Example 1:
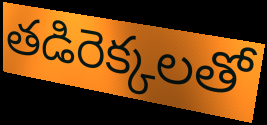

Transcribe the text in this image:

తడిరెక్కలతో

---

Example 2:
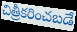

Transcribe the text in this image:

చిత్రీకరించబడే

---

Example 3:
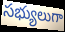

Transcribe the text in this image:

సభ్యులుగా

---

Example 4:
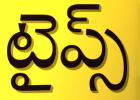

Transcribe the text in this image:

టైప్స్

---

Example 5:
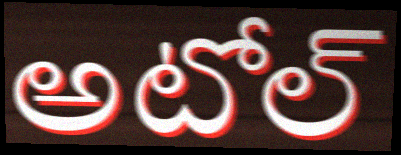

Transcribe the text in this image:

అటోల్